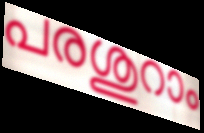
പരശുറാം